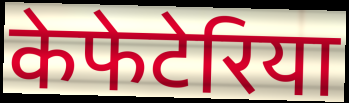
केफेटेरिया